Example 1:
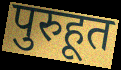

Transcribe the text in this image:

पुरुहूत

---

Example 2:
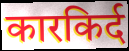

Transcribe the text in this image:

कारकिर्द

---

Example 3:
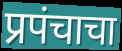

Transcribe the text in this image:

प्रपंचाचा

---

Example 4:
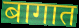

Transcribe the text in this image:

बागात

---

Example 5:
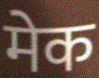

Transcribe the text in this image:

मेक